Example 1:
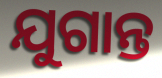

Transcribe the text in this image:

ଯୁଗାନ୍ତ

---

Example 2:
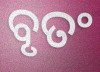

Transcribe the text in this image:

ବୃତଂ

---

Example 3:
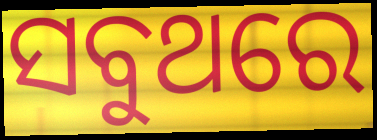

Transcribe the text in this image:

ସବୁଥରେ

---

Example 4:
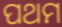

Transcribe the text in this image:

ପଥମ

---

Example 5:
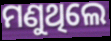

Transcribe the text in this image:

ମଣୁଥିଲେ